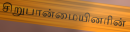
சிறுபான்மையினரின்